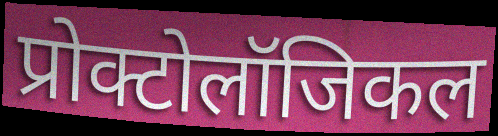
प्रोक्टोलॉजिकल